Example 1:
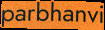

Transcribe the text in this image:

parbhanvi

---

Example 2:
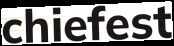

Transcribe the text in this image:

chiefest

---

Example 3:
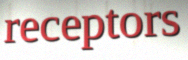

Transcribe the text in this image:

receptors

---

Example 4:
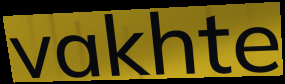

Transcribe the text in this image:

vakhte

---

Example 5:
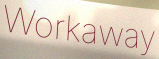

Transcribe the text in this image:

Workaway